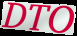
DTO